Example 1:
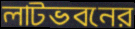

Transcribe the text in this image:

লাটভবনের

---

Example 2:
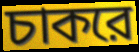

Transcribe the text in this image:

চাকরে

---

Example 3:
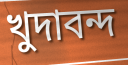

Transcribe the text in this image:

খুদাবন্দ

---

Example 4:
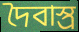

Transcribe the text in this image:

দৈবাস্ত্র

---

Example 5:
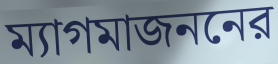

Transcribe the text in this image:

ম্যাগমাজননের